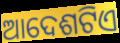
ଆଦେଶଟିଏ